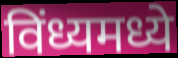
विंध्यमध्ये